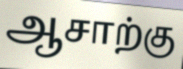
ஆசாற்கு